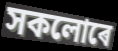
সকলোৰে